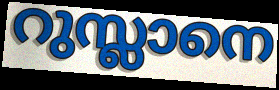
റുസ്ലാനെ